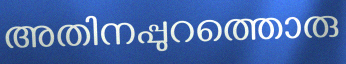
അതിനപ്പുറത്തൊരു